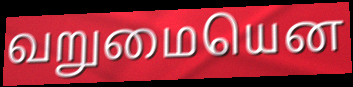
வறுமையென